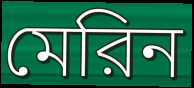
মেরিন